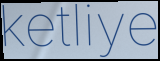
ketliye